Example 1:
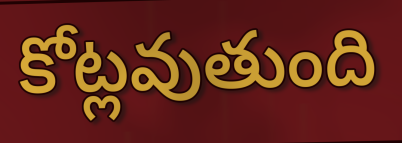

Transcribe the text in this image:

కోట్లవుతుంది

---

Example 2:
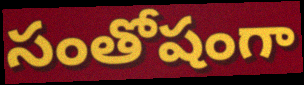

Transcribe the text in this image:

సంతోషంగా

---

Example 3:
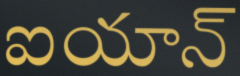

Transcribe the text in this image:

ఐయాన్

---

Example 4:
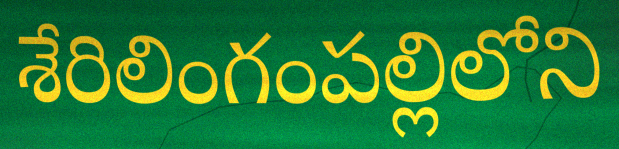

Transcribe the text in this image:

శేరిలింగంపల్లిలోని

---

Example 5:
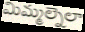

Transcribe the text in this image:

మిమ్మల్నెలా